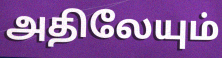
அதிலேயும்